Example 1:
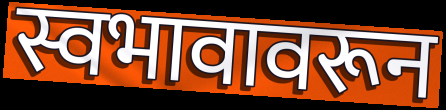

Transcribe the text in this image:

स्वभावावरून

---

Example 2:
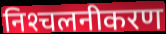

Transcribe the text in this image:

निश्चलनीकरण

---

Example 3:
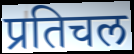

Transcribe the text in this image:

प्रतिचल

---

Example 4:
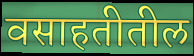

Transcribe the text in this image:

वसाहतीतील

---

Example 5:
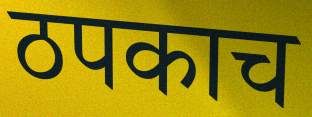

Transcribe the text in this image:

ठपकाच